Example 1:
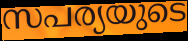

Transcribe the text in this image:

സപര്യയുടെ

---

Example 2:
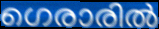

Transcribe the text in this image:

ഗെരാരിൽ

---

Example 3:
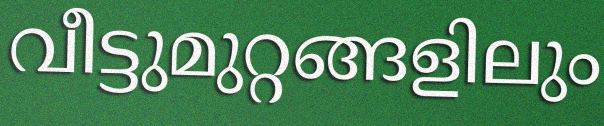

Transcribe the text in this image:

വീട്ടുമുറ്റങ്ങളിലും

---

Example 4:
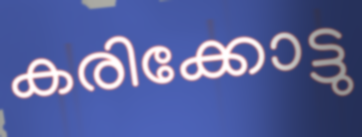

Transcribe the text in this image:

കരിക്കോട്ടു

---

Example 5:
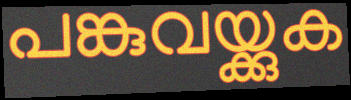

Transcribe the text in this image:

പങ്കുവയ്ക്കുക